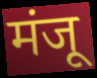
मंजू